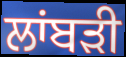
ਲਾਂਬੜੀ